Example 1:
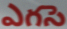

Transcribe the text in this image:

ఎగసె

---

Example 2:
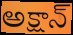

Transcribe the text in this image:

అక్షాన్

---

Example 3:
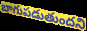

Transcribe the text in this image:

బాగుపడుతుందని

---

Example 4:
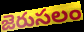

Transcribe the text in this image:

జెరుసలం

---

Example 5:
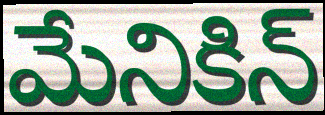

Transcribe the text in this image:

మేనికిన్